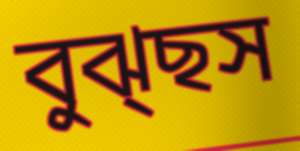
বুঝ্ছস